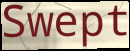
Swept